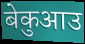
बेकुआउ